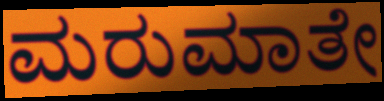
ಮರುಮಾತೇ